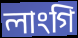
লাংগি